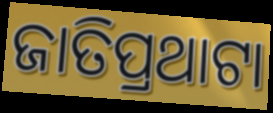
ଜାତିପ୍ରଥାଟା